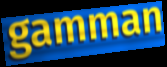
gamman